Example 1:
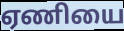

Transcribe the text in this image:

ஏணியை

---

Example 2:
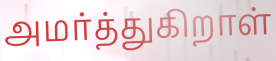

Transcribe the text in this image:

அமர்த்துகிறாள்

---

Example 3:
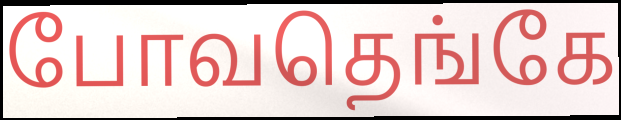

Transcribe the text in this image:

போவதெங்கே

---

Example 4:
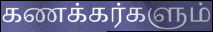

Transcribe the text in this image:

கணக்கர்களும்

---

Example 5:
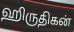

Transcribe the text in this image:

ஹிருதிகன்